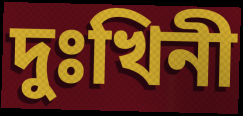
দুঃখিনী